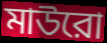
মাউরো